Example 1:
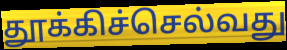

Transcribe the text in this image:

தூக்கிச்செல்வது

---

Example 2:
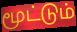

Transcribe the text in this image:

மூட்டும்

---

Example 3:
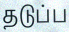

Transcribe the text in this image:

தடுப்ப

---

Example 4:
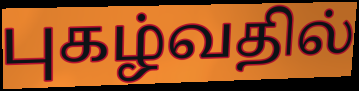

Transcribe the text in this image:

புகழ்வதில்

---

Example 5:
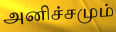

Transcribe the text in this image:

அனிச்சமும்